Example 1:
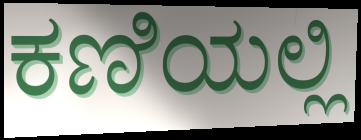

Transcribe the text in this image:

ಕಣಿಯಲ್ಲಿ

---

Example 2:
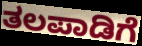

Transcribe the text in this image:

ತಲಪಾಡಿಗೆ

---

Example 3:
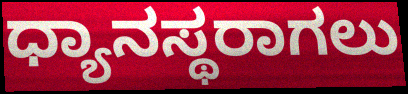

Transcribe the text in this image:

ಧ್ಯಾನಸ್ಥರಾಗಲು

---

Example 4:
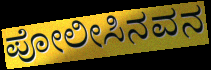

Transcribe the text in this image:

ಪೋಲೀಸಿನವನ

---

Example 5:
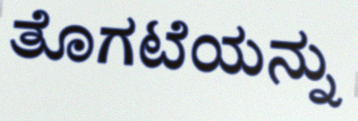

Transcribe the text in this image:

ತೊಗಟೆಯನ್ನು